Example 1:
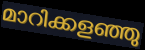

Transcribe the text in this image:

മാറിക്കളഞ്ഞു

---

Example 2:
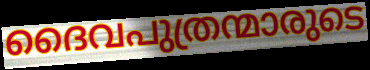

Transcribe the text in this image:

ദൈവപുത്രന്മാരുടെ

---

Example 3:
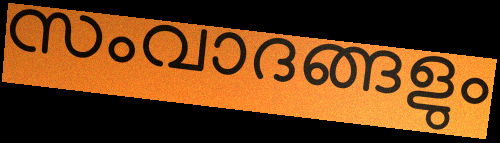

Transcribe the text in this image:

സംവാദങ്ങളും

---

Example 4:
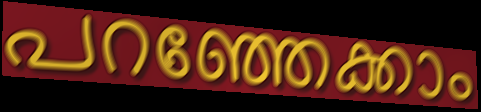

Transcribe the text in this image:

പറഞ്ഞേക്കാം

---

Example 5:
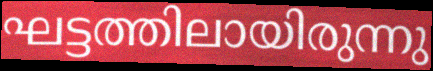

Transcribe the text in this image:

ഘട്ടത്തിലായിരുന്നു